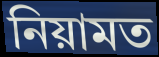
নিয়ামত